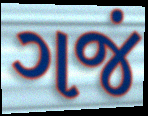
ગજં